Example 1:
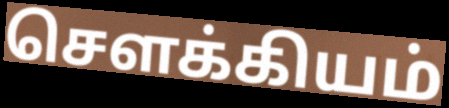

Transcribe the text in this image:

சௌக்கியம்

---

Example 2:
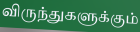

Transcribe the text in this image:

விருந்துகளுக்கும்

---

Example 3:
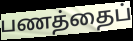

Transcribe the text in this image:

பணத்தைப்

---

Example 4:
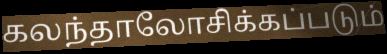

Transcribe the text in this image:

கலந்தாலோசிக்கப்படும்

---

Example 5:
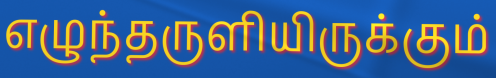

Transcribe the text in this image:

எழுந்தருளியிருக்கும்